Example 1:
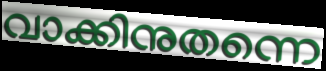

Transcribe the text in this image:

വാക്കിനുതന്നെ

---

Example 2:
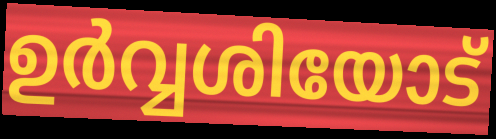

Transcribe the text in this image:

ഉർവ്വശിയോട്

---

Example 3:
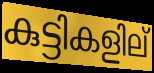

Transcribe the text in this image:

കുട്ടികളില്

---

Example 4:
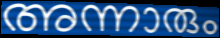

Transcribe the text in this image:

അന്നാരും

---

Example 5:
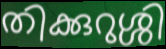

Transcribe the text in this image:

തിക്കുറുശ്ശി